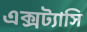
এক্সট্যাসি